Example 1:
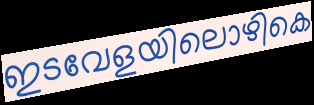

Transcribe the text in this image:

ഇടവേളയിലൊഴികെ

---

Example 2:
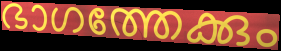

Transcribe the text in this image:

ഭാഗത്തേക്കും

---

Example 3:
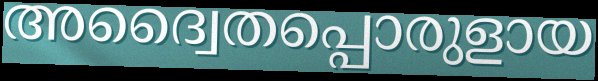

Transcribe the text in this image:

അദ്വൈതപ്പൊരുളായ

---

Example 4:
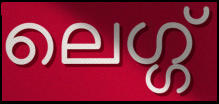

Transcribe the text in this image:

ലെഗ്ഗ്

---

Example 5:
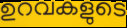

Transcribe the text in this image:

ഉറവകളുടെ